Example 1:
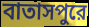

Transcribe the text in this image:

বাতাসপুরে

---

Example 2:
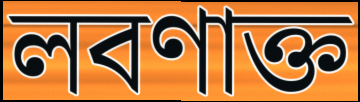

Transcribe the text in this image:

লবণাক্ত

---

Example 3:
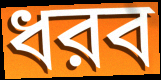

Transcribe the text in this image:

ধরব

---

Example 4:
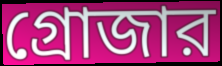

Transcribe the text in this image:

গ্রোজার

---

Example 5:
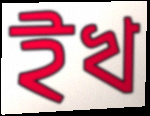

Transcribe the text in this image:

ইখ